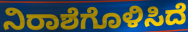
ನಿರಾಶೆಗೊಳಿಸಿದೆ